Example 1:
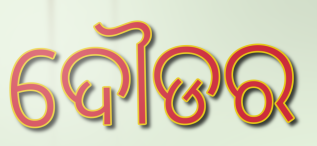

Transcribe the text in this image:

ଦୌଡର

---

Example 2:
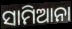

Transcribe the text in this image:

ସାମିଆନା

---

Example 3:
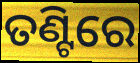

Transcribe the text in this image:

ତଣ୍ଟିରେ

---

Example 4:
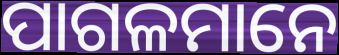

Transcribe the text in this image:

ପାଗଳମାନେ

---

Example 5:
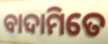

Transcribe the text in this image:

ବାଦାମିତେ